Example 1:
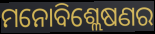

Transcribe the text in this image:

ମନୋବିଶ୍ଲେଷଣର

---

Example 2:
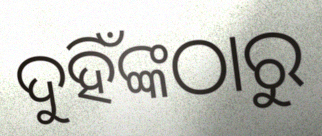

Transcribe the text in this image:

ଦୁହିଁଙ୍କଠାରୁ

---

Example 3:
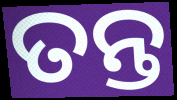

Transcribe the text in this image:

ତନ୍ତ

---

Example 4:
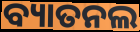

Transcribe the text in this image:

ବ୍ୟାତନଲ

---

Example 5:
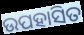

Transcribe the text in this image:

ଉପହାସିତ